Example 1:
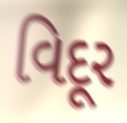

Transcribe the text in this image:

વિદૂર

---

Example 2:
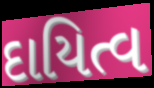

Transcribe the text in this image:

દાયિત્વ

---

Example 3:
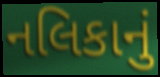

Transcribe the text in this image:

નલિકાનું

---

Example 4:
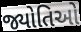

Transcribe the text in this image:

જ્યોતિઓ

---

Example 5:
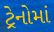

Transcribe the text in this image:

ટ્રેનોમાં